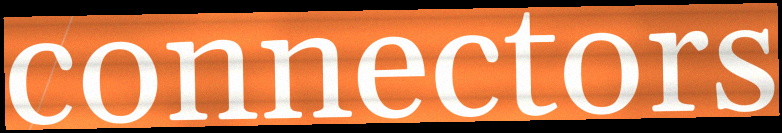
connectors